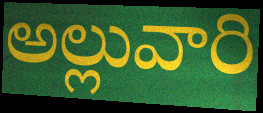
అల్లువారి